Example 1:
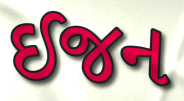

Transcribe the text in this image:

ઈજન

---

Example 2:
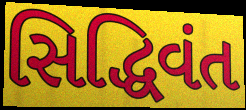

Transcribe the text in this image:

સિદ્ધિવંત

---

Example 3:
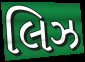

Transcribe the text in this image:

લિઝ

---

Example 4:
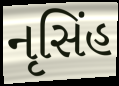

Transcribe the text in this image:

નૃસિંહ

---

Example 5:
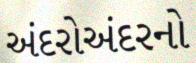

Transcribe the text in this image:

અંદરોઅંદરનો